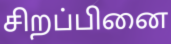
சிறப்பினை